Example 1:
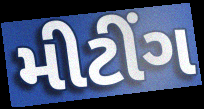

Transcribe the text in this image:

મીટીંગ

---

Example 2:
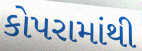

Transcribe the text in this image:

કોપરામાંથી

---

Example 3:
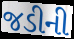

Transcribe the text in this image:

જડીની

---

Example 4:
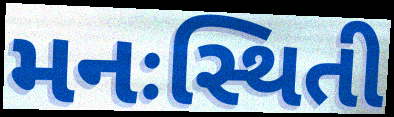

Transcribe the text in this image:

મનઃસ્થિતી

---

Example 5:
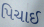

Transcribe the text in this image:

પિચાઈ